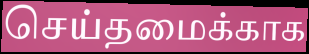
செய்தமைக்காக